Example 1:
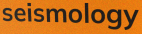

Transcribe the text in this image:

seismology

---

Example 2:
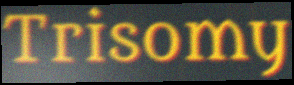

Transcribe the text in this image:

Trisomy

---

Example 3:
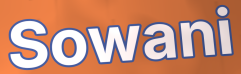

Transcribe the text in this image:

Sowani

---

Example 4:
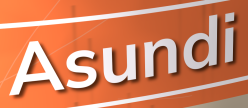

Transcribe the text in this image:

Asundi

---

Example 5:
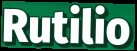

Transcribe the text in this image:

Rutilio